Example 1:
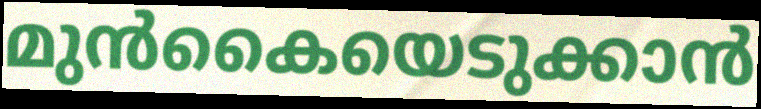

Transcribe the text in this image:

മുൻകൈയെടുക്കാൻ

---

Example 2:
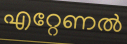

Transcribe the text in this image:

എറ്റേണൽ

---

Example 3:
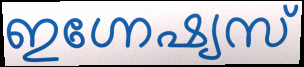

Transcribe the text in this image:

ഇഗ്നേഷ്യസ്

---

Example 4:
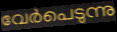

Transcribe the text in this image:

വേർപെടുന്നു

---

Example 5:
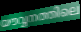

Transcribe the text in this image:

യൗവ്വനത്തിലെ